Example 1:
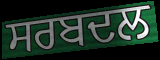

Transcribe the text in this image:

ਸਰਬਦਲ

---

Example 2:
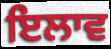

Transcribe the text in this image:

ਇਲਾਵ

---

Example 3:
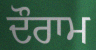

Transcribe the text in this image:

ਦੌਰਾਮ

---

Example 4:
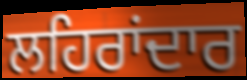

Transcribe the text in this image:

ਲਹਿਰਾਂਦਾਰ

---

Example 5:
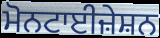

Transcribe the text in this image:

ਮੋਨਟਾਈਜ਼ੇਸ਼ਨ